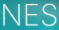
NES